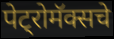
पेट्रोमॅक्सचे